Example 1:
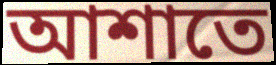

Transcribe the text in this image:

আশাতে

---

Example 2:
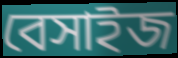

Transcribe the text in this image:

বেসাইজ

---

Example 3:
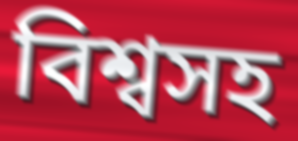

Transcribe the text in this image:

বিশ্বসহ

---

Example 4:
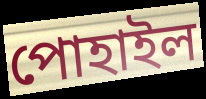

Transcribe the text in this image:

পোহাইল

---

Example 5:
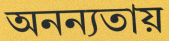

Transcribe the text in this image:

অনন্যতায়